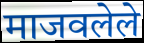
माजवलेले